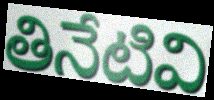
తినేటివి